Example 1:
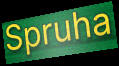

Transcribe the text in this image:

Spruha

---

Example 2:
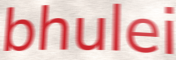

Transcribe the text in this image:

bhulei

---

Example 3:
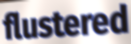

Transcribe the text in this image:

flustered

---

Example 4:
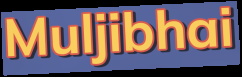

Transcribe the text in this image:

Muljibhai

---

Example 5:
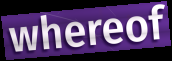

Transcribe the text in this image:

whereof